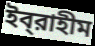
ইব্‌রাহীম